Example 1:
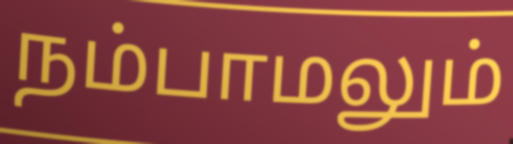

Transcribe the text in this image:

நம்பாமலும்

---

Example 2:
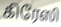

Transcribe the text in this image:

கிரேஸி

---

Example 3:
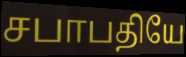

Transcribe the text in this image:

சபாபதியே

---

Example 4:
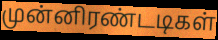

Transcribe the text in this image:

முன்னிரண்டடிகள்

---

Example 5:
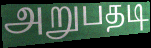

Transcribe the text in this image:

அறுபதடி